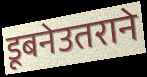
डूबनेउतराने